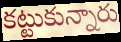
కట్టుకున్నారు